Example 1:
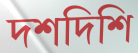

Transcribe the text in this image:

দশদিশি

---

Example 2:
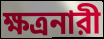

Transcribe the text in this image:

ক্ষত্রনারী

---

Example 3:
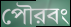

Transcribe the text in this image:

পৌরবং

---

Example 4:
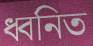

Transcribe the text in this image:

ধ্বনিত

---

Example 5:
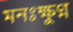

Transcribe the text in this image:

মনঃক্ষুণ্ন